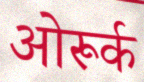
ओरूर्क